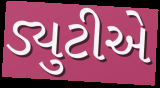
ડ્યુટીએ